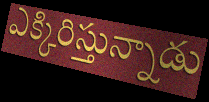
ఎక్కిరిస్తున్నాడు